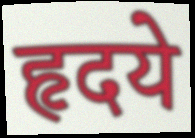
हृदये